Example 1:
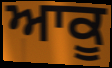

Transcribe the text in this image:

ਆਕੂ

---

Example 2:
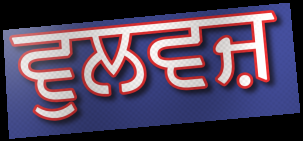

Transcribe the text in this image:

ਵੁਲਵਜ਼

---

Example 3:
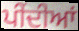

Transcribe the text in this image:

ਪੀਂਦੀਆਂ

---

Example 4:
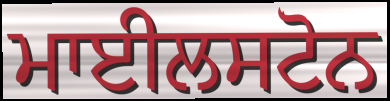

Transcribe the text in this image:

ਮਾਈਲਸਟੋਨ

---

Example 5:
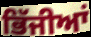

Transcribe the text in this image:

ਭਿੱਜੀਆਂ